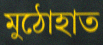
মুঠোহাত